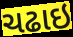
ચઢાઇ